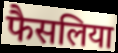
फैसलिया